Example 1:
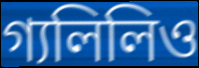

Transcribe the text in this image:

গ্যলিলিও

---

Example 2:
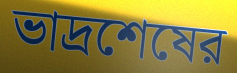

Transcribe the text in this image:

ভাদ্রশেষের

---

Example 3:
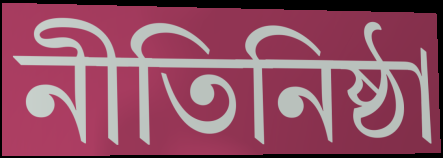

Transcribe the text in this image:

নীতিনিষ্ঠা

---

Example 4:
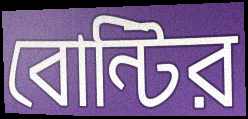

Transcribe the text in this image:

বোন্টির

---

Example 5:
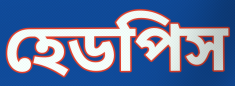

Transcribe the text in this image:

হেডপিস